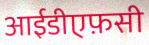
आईडीएफ़सी